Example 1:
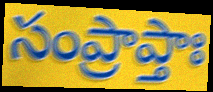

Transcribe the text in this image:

సంప్రాప్తాః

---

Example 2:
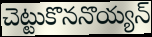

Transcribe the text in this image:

చెట్టుకొననొయ్యన్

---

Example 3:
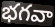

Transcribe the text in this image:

భగవా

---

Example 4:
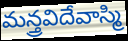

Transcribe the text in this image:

మన్త్రవిదేవాస్మి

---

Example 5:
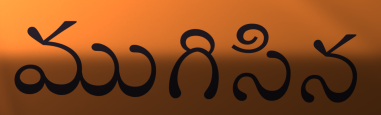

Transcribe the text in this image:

ముగిసిన